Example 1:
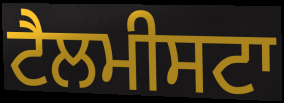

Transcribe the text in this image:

ਟੈਲਮੀਸਟਾ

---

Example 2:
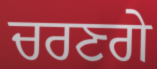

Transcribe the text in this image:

ਚਰਣਗੇ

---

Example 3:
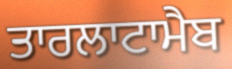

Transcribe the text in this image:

ਤਾਰਲਾਟਾਮੈਬ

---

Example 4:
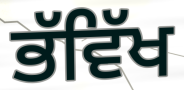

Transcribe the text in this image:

ਭੱਵਿੱਖ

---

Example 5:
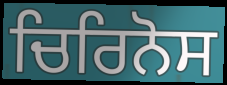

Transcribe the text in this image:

ਚਿਰਿਨੋਸ